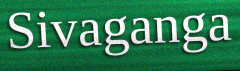
Sivaganga